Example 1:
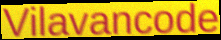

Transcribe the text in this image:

Vilavancode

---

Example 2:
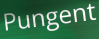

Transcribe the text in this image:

Pungent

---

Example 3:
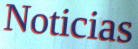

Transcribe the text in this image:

Noticias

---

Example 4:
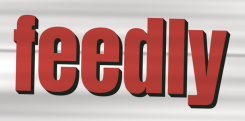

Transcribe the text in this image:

feedly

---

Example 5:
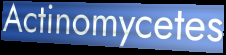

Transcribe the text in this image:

Actinomycetes